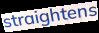
straightens